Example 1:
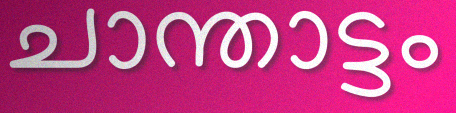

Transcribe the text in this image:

ചാന്താട്ടം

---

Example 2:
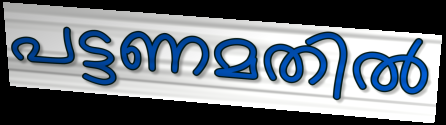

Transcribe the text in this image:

പട്ടണമതിൽ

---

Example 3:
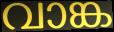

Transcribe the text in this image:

വാങ്ക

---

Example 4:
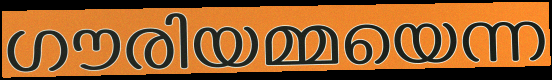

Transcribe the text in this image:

ഗൗരിയമ്മയെന്ന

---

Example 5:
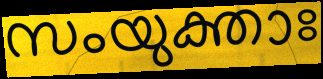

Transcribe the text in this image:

സംയുക്താഃ